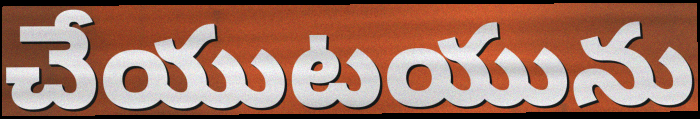
చేయుటయును